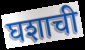
घशाची